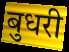
बुधरी